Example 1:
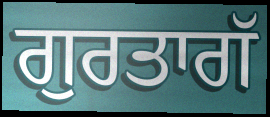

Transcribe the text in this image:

ਗੁਰਤਾਗੱ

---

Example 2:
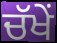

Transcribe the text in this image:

ਚੱਖੇਂ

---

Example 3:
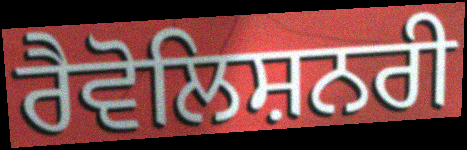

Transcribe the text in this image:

ਰੈਵੋਲਿਸ਼ਨਰੀ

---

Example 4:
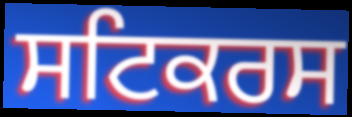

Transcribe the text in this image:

ਸਟਿਕਰਸ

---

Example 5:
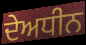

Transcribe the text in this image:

ਦੇਅਧੀਨ